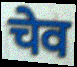
चेव